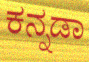
ಕನ್ನಡಾ